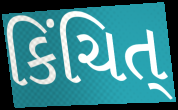
કિંચિત્